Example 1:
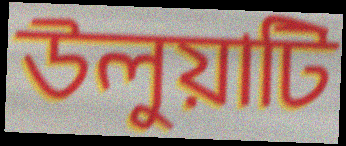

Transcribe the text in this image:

উলুয়াটি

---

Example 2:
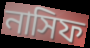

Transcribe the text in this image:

নাসিফ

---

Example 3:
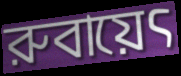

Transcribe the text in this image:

রুবায়েৎ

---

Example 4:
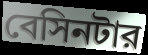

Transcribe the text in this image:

বেসিনটার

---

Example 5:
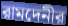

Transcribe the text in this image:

রামদেনীর